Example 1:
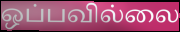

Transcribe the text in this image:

ஒப்பவில்லை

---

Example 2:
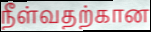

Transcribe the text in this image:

நீள்வதற்கான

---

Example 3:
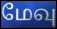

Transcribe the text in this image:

மேவு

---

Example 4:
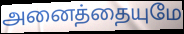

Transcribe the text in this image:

அனைத்தையுமே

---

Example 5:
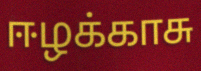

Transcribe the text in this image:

ஈழக்காசு